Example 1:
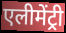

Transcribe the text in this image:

एलीमेंट्री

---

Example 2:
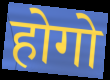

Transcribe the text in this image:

होगो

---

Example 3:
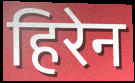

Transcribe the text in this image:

हिरेन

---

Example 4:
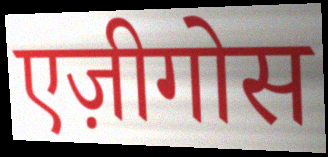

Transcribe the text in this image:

एज़ीगोस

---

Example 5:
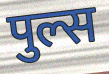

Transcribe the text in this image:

पुल्स